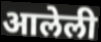
आलेली